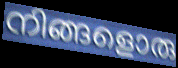
നിങ്ങളൊരു